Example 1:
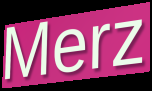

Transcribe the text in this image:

Merz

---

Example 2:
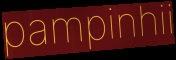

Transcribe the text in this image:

pampinhii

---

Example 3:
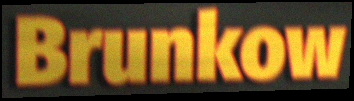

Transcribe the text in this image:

Brunkow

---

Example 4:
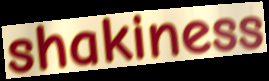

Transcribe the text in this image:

shakiness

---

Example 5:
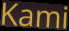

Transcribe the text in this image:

Kami